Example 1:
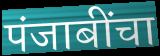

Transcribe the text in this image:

पंजाबींचा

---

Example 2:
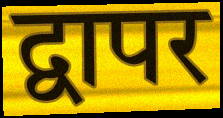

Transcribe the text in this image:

द्वापर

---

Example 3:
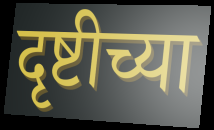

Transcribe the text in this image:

दृष्टीच्या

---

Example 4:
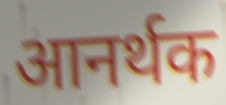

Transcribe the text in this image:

आनर्थक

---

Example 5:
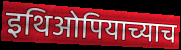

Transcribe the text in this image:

इथिओपियाच्याच